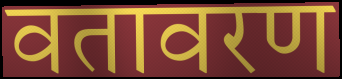
वतावरण